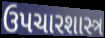
ઉપચારશાસ્ત્ર